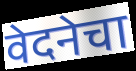
वेदनेचा